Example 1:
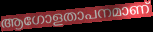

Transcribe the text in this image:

ആഗോളതാപനമാണ്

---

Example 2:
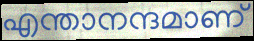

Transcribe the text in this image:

എന്താനന്ദമാണ്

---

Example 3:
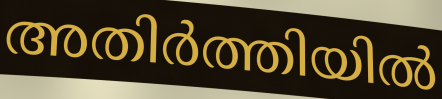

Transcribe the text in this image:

അതിർത്തിയിൽ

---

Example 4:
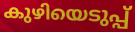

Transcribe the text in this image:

കുഴിയെടുപ്പ്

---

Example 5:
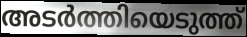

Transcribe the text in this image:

അടർത്തിയെടുത്ത്